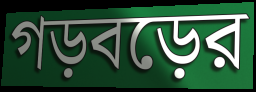
গড়বড়ের